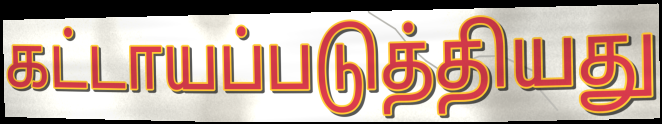
கட்டாயப்படுத்தியது